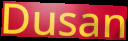
Dusan